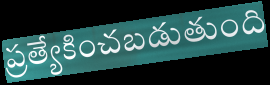
ప్రత్యేకించబడుతుంది